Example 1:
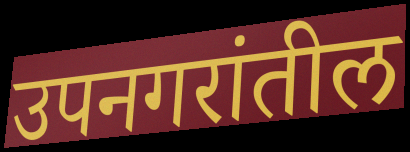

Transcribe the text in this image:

उपनगरांतील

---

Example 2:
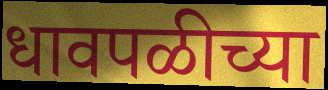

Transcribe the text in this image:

धावपळीच्या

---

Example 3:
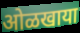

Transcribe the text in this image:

ओळखाया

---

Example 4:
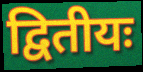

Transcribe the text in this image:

द्वितीयः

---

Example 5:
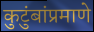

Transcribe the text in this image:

कुटुंबांप्रमाणे